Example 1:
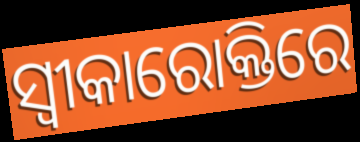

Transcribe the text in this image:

ସ୍ୱୀକାରୋକ୍ତିରେ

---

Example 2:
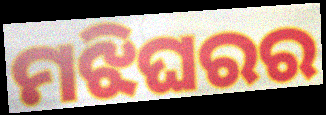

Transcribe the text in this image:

ମଝିଘରର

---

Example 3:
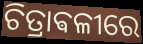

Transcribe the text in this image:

ଚିତ୍ରାଵଳୀରେ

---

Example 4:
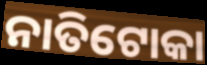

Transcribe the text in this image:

ନାତିଟୋକା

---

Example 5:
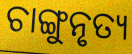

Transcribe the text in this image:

ଚାଙ୍ଗୁନୃତ୍ୟ